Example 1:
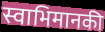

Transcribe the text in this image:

स्वाभिमानकी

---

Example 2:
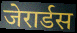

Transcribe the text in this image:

जेरार्डस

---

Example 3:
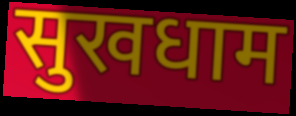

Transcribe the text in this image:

सुखधाम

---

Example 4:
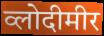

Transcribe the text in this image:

व्लोदीमीर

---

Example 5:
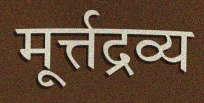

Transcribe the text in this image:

मूर्त्तद्रव्य